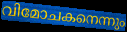
വിമോചകനെന്നും